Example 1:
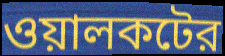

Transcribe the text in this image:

ওয়ালকটের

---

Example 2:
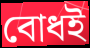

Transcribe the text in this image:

বোধই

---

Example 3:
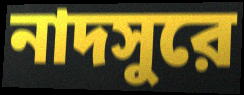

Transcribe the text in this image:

নাদসুরে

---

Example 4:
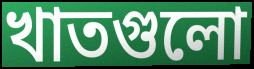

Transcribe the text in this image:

খাতগুলো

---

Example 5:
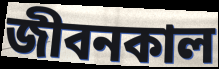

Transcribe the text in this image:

জীবনকাল